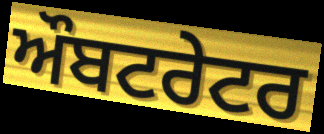
ਔਬਟਰੇਟਰ